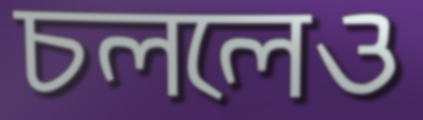
চললেও